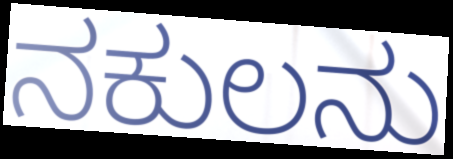
ನಕುಲನು